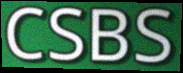
CSBS